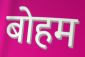
बोहम